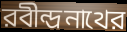
রবীন্দ্রনাথের